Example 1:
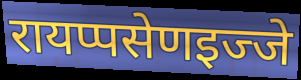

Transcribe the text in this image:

रायप्पसेणइज्जे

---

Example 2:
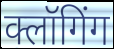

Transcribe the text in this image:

क्लॉगिंग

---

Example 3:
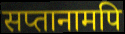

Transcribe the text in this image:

सप्तानामपि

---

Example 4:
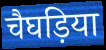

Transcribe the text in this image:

चैघड़िया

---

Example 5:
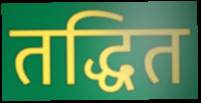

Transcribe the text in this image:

तद्धित